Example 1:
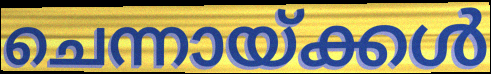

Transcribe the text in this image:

ചെന്നായ്ക്കൾ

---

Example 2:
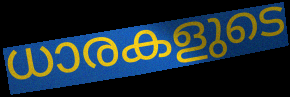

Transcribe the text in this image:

ധാരകളുടെ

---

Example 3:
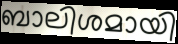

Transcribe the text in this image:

ബാലിശമായി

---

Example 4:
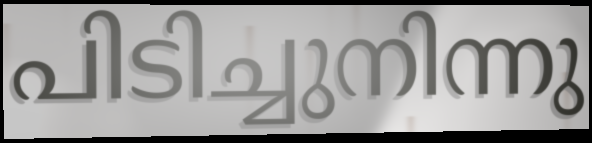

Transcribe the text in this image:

പിടിച്ചുനിന്നു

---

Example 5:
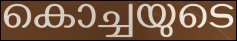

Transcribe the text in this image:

കൊച്ചയുടെ